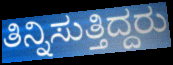
ತಿನ್ನಿಸುತ್ತಿದ್ದರು